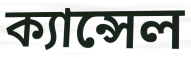
ক্যান্সেল